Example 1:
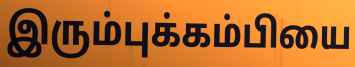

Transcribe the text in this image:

இரும்புக்கம்பியை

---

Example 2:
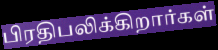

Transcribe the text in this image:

பிரதிபலிக்கிறார்கள்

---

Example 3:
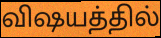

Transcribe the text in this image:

விஷயத்தில்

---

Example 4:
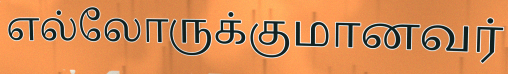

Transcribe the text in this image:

எல்லோருக்குமானவர்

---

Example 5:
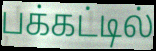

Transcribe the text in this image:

பக்கட்டில்